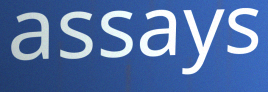
assays